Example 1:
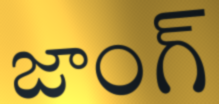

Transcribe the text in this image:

జాంగ్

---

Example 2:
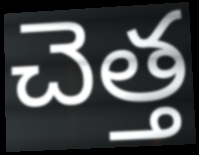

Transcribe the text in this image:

చెత్త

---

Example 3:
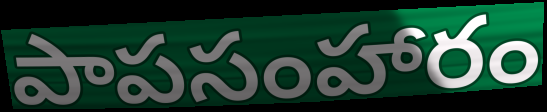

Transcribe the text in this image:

పాపసంహారం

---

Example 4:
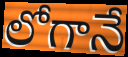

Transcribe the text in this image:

లోగానే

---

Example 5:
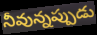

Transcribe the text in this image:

నీవున్నప్పుడు